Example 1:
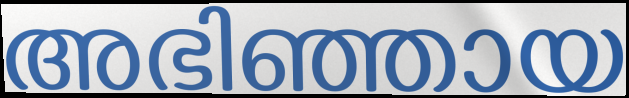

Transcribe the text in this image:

അഭിഞ്ഞായ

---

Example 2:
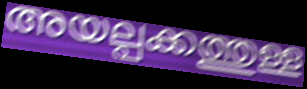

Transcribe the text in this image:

അയല്പക്കത്തുള്ള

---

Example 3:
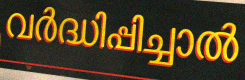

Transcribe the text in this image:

വർദ്ധിപ്പിച്ചാൽ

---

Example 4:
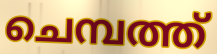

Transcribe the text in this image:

ചെമ്പത്ത്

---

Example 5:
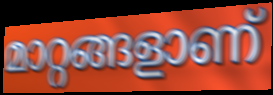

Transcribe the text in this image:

മാറ്റങ്ങളാണ്